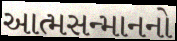
આત્મસન્માનનો